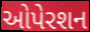
ઓપેરશન